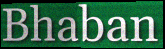
Bhaban